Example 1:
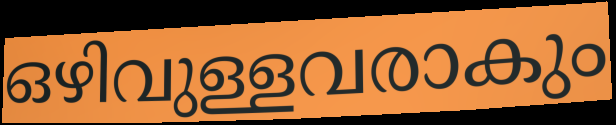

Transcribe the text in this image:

ഒഴിവുള്ളവരാകും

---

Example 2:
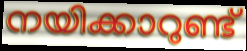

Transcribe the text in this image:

നയിക്കാറുണ്ട്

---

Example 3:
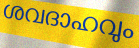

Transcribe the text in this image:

ശവദാഹവും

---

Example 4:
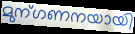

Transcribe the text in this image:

മുന്ഗണനയായി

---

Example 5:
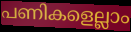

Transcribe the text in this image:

പണികളെല്ലാം